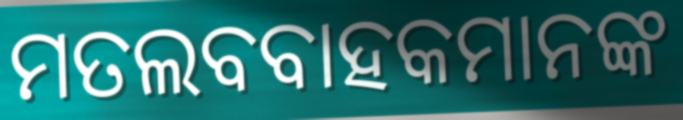
ମତଲବବାହକମାନଙ୍କ